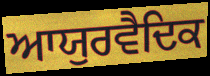
ਆਯੁਰਵੈਦਿਕ